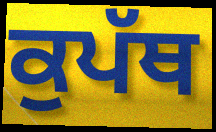
ਕੁਪੱਥ